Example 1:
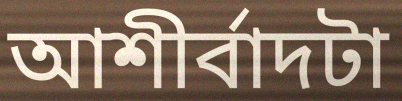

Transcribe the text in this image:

আশীর্বাদটা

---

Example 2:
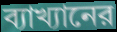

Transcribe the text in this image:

ব্যাখ্যানের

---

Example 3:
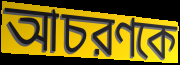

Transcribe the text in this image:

আচরণকে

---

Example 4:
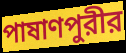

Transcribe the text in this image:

পাষাণপুরীর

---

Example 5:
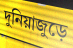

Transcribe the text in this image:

দুনিয়াজুড়ে